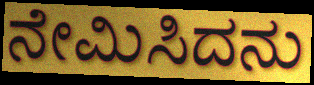
ನೇಮಿಸಿದನು